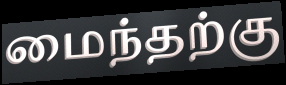
மைந்தற்கு